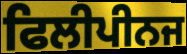
ਫਿਲੀਪੀਨਜ